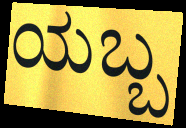
ಯಬ್ಬ